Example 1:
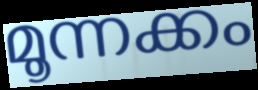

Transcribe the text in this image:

മൂന്നക്കം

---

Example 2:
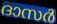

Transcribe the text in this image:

ദാസർ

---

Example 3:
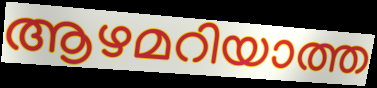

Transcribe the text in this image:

ആഴമറിയാത്ത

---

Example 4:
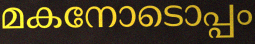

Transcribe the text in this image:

മകനോടൊപ്പം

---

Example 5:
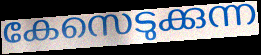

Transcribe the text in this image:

കേസെടുക്കുന്ന